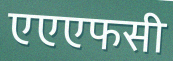
एएएफसी